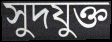
সুদযুক্ত